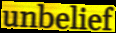
unbelief